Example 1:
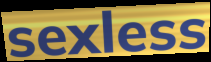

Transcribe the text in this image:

sexless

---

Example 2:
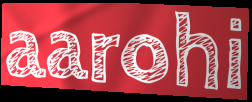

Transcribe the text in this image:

aarohi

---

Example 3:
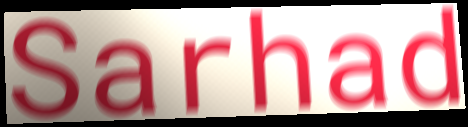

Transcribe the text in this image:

Sarhad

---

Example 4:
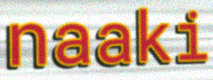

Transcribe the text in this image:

naaki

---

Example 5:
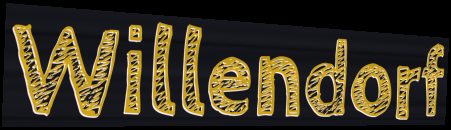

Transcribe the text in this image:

Willendorf